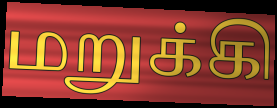
மறுக்கி